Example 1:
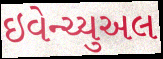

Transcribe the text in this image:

ઇવેન્ચ્યુઅલ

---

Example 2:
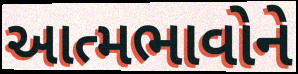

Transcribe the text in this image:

આત્મભાવોને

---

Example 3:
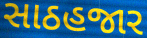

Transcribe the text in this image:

સાઠહજાર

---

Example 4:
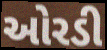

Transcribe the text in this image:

ઓરડી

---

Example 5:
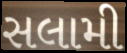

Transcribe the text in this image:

સલામી